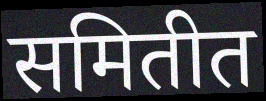
समितीत